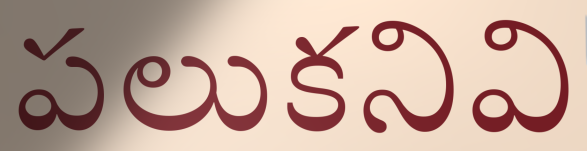
పలుకనివి